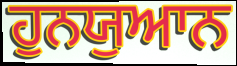
ਹੁਨਯੁਆਨ